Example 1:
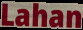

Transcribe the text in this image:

Lahan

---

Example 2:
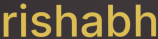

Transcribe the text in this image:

rishabh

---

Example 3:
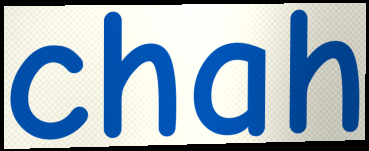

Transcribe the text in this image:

chah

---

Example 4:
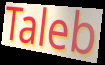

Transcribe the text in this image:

Taleb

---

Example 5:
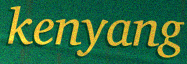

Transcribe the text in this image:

kenyang